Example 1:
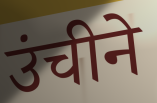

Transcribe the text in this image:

उंचीने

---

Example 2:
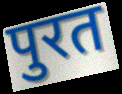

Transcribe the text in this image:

पुरत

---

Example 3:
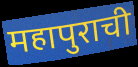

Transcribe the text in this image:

महापुराची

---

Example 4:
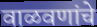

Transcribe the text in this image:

वाळवणांचे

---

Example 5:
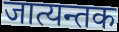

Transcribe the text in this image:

जात्यन्तक